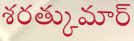
శరత్కుమార్